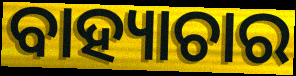
ବାହ୍ୟାଚାର